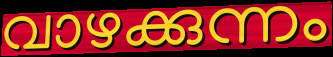
വാഴക്കുന്നം